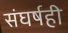
संघर्षही